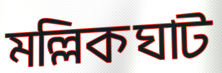
মল্লিকঘাট